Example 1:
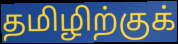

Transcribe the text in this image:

தமிழிற்குக்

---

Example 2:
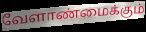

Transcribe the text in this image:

வேளாண்மைக்கும்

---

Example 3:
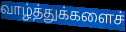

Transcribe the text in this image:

வாழ்த்துக்களைச்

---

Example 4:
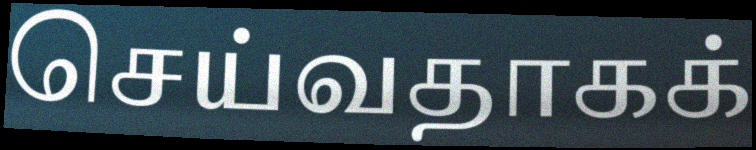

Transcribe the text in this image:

செய்வதாகக்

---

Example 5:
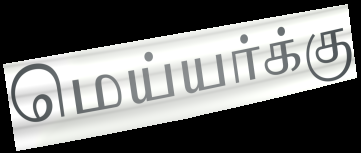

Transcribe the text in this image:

மெய்யர்க்கு